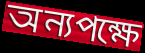
অন্যপক্ষে